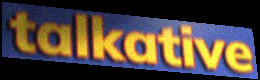
talkative